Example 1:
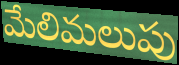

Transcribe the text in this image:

మేలిమలుపు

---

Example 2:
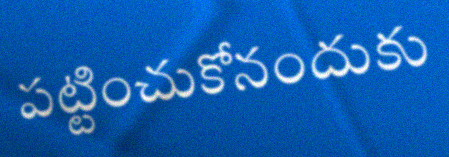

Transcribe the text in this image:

పట్టించుకోనందుకు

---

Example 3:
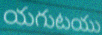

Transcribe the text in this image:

యగుటయు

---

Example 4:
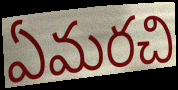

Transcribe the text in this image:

ఏమరచి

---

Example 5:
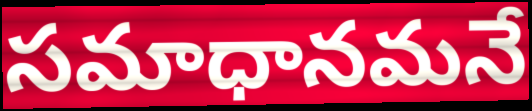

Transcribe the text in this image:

సమాధానమనే